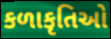
કળાકૃતિઓ